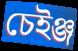
চেইঞ্জ